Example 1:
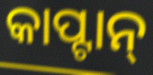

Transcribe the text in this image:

କାପ୍ଟାନ୍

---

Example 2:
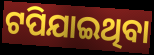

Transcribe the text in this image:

ଟପିଯାଇଥିବା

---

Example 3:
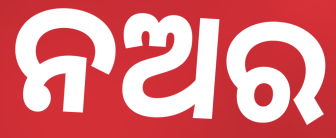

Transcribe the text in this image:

ନଅର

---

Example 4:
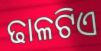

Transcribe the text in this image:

ଢାଳଟିଏ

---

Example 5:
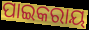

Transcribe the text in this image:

ପାଇକରାୟ